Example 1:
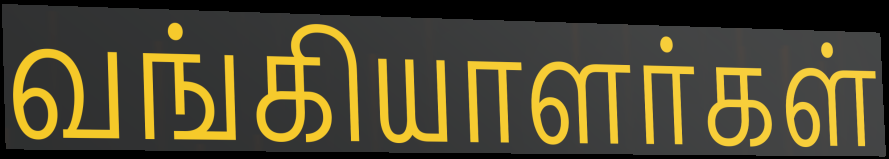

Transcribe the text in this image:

வங்கியாளர்கள்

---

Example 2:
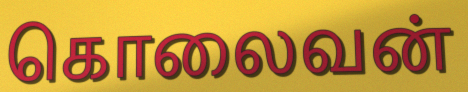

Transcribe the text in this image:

கொலைவன்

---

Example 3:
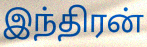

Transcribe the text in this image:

இந்திரன்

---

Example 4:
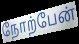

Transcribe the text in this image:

நோற்பேன்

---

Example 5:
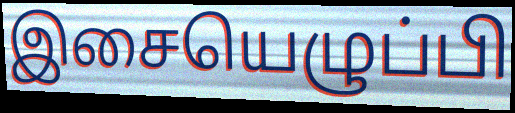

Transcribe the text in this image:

இசையெழுப்பி